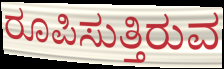
ರೂಪಿಸುತ್ತಿರುವ